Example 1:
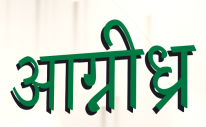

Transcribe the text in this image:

आग्नीध्र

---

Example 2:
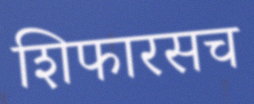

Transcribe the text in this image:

शिफारसच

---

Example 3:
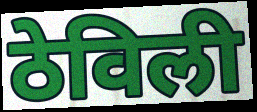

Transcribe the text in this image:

ठेविली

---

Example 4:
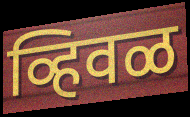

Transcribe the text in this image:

व्हिवळ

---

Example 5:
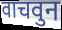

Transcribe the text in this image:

वाचवुन